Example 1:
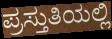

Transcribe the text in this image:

ಪ್ರಸ್ತುತಿಯಲ್ಲಿ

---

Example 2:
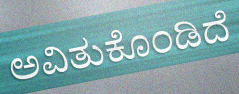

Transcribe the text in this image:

ಅವಿತುಕೊಂಡಿದೆ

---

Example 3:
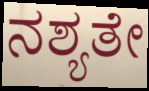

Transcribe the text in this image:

ನಶ್ಯತೇ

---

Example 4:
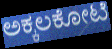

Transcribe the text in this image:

ಅಕ್ಕಲಕೋಟೆ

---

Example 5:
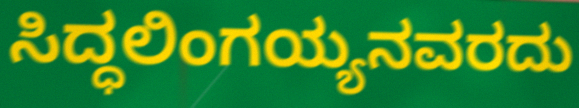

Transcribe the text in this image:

ಸಿದ್ಧಲಿಂಗಯ್ಯನವರದು